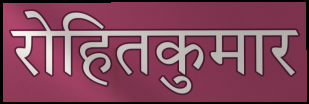
रोहितकुमार